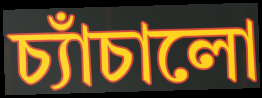
চ্যাঁচালো